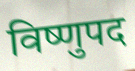
विष्‍णुपद